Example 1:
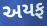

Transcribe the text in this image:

અયફ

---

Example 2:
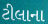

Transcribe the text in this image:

ટીલાના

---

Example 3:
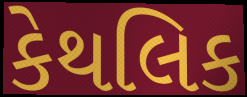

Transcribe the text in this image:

કેથલિક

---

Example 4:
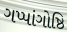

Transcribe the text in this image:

ગપ્પાંગોષ્ઠિ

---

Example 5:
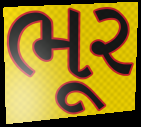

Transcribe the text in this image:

ભૂર